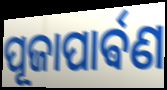
ପୂଜାପାର୍ଵଣ